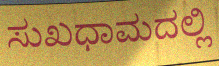
ಸುಖಧಾಮದಲ್ಲಿ